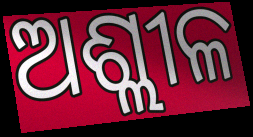
ଅଶ୍ଲୀଳ